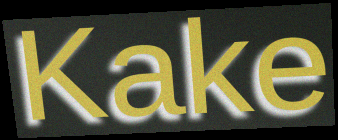
Kake